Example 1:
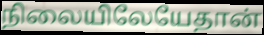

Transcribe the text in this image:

நிலையிலேயேதான்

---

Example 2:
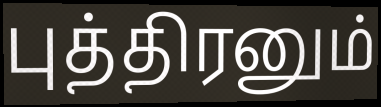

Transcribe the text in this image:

புத்திரனும்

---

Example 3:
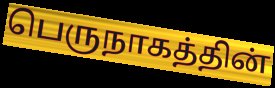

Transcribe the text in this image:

பெருநாகத்தின்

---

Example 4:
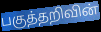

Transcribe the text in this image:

பகுத்தறிவின்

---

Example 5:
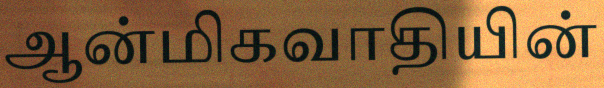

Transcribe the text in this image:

ஆன்மிகவாதியின்